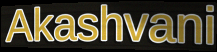
Akashvani